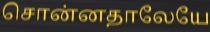
சொன்னதாலேயே